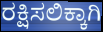
ರಕ್ಷಿಸಲಿಕ್ಕಾಗಿ